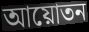
আয়োতন